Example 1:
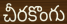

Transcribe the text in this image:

చీరకొంగు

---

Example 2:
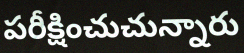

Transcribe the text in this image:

పరీక్షించుచున్నారు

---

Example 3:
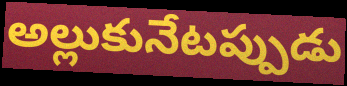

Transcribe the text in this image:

అల్లుకునేటప్పుడు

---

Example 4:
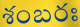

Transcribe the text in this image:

శంబరః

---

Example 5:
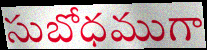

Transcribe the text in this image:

సుబోధముగా